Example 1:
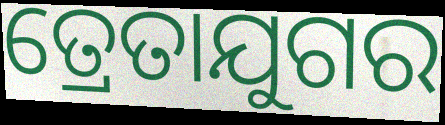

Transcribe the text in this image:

ତ୍ରେତାଯୁଗର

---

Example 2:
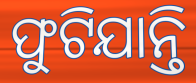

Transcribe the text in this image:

ଫୁଟିଯାନ୍ତି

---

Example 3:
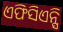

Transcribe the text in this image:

ଏଫିସିଏନ୍ସି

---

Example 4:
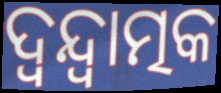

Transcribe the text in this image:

ଦ୍ଵନ୍ଦ୍ଵାତ୍ମକ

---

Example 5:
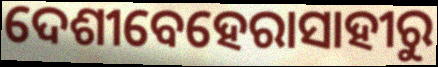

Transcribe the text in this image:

ଦେଶୀବେହେରାସାହୀରୁ